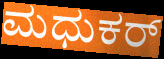
ಮಧುಕರ್